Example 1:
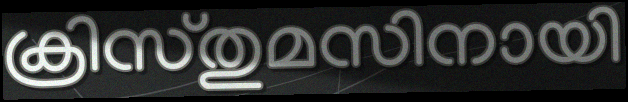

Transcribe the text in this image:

ക്രിസ്തുമസിനായി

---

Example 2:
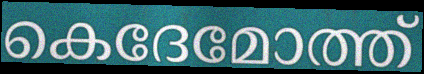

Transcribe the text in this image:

കെദേമോത്ത്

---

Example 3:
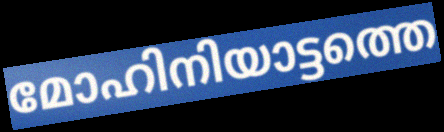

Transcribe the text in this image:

മോഹിനിയാട്ടത്തെ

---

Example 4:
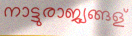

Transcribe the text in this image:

നാട്ടുരാജ്യങ്ങള്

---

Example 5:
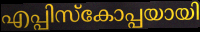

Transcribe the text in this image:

എപ്പിസ്കോപ്പയായി